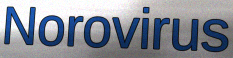
Norovirus